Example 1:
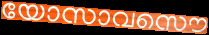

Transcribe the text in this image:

യോസാവസൌ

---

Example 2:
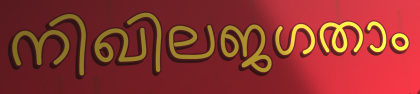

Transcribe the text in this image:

നിഖിലജഗതാം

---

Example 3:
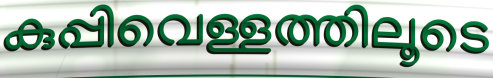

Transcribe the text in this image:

കുപ്പിവെള്ളത്തിലൂടെ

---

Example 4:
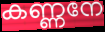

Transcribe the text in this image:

കണ്ണനേ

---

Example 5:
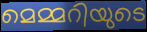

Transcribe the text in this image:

മെമ്മറിയുടെ